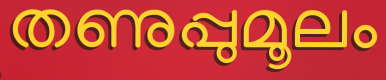
തണുപ്പുമൂലം